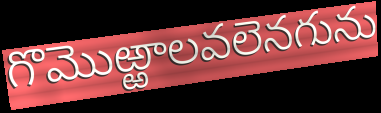
గొమొఱ్ఱాలవలెనగును